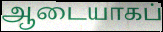
ஆடையாகப்